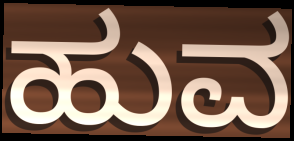
ಹುವ